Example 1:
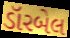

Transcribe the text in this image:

ડૉરબેલ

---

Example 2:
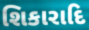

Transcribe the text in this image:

શિકારાદિ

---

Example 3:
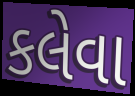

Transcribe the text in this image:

કલેવા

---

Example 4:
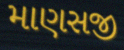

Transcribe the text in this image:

માણસજી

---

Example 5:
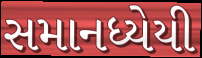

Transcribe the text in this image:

સમાનધ્યેયી